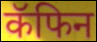
कॅफिन